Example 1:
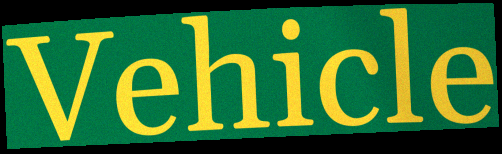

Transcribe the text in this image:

Vehicle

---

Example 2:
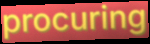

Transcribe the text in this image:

procuring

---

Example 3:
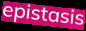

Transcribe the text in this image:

epistasis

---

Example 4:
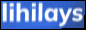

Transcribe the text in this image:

lihilays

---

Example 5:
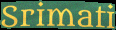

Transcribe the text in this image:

Srimati